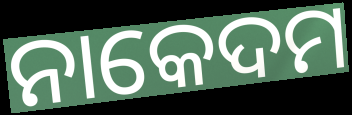
ନାକେଦମ